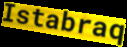
Istabraq